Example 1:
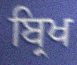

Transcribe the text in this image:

ਬ੍ਰਿਖ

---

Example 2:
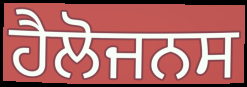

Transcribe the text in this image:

ਹੈਲੋਜਨਸ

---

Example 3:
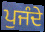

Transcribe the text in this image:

ਪੁਜੰਦੇ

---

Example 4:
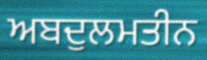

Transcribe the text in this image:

ਅਬਦੁਲਮਤੀਨ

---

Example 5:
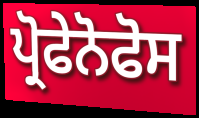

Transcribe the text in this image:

ਪ੍ਰੋਫੇਨੋਫੋਸ